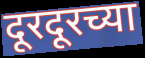
दूरदूरच्या